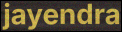
jayendra